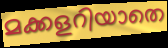
മക്കളറിയാതെ